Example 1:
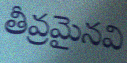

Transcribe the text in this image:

తీవ్రమైనవి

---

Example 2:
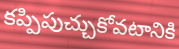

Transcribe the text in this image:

కప్పిపుచ్చుకోవటానికి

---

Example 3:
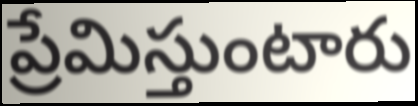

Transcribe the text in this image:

ప్రేమిస్తుంటారు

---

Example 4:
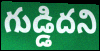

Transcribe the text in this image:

గుడ్డిదని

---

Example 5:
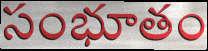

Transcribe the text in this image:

సంభూతం